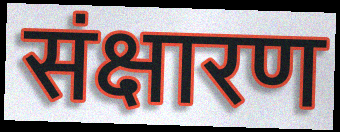
संक्षारण